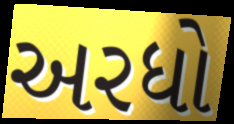
અરધો